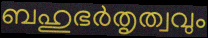
ബഹുഭർതൃത്വവും